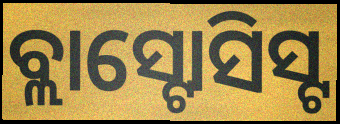
ବ୍ଲାସ୍ଟୋସିସ୍ଟ